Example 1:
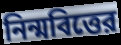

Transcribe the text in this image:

নিন্মবিত্তের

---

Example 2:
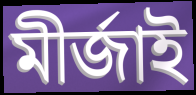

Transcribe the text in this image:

মীর্জাই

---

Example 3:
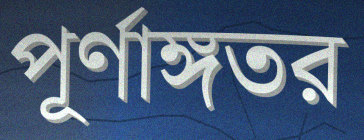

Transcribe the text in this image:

পূর্ণাঙ্গতর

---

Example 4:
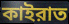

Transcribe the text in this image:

কাইরাত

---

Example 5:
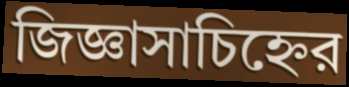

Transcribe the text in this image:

জিজ্ঞাসাচিহ্নের